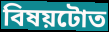
বিষয়টোত